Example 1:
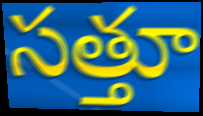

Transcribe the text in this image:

సత్తూ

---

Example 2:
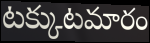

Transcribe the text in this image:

టక్కుటమారం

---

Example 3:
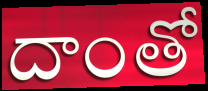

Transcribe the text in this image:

దాంతో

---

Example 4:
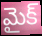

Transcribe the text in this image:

మైక్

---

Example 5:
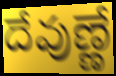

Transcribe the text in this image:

దేవుణ్ణే